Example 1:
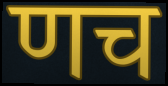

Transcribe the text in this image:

णच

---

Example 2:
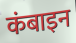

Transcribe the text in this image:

कंबाइन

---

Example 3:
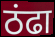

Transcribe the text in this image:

ठंढा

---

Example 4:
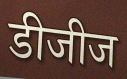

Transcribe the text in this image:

डीजीज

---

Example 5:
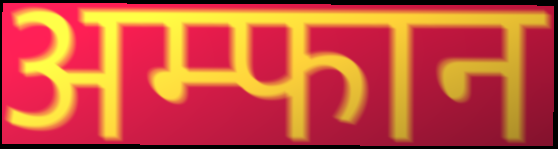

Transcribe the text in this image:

अम्फान